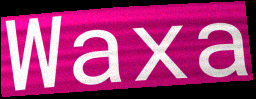
Waxa